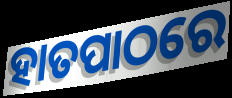
ହାତପାଠରେ